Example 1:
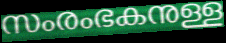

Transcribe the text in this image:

സംരംഭകനുള്ള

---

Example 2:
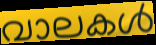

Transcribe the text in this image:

വാലകൾ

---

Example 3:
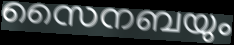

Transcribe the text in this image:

സൈനബയും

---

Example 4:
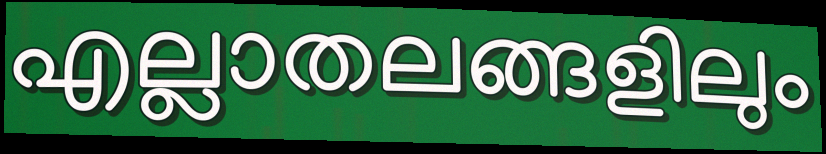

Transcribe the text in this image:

എല്ലാതലങ്ങളിലും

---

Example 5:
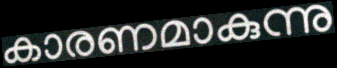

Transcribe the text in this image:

കാരണമാകുന്നു